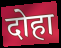
दोहा